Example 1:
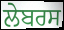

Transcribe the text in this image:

ਲੇਬਰਸ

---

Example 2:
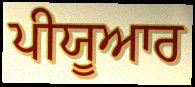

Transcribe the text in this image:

ਪੀਯੂਆਰ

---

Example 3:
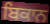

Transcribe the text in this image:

ਬਿਕਾਨ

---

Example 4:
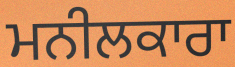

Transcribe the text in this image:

ਮਨੀਲਕਾਰਾ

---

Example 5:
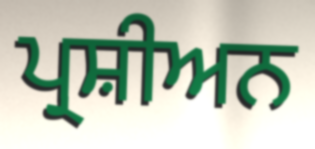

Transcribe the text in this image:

ਪ੍ਰਸ਼ੀਅਨ